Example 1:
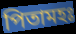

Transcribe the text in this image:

পিতামহঃ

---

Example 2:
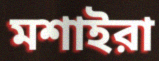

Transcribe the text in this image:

মশাইরা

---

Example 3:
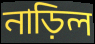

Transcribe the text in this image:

নাড়িল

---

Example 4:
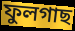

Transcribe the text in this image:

ফুলগাছ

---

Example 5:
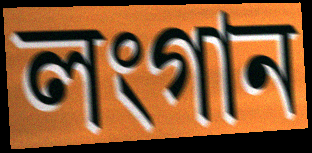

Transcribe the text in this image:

লংগান